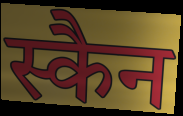
स्कैन